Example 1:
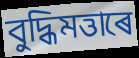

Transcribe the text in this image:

বুদ্ধিমত্তাৰে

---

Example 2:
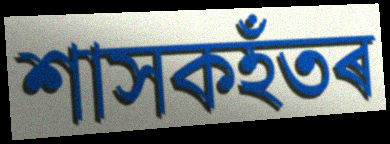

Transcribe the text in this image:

শাসকহঁতৰ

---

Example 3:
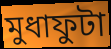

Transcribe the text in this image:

মুধাফুটা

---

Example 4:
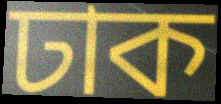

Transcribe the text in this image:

ঢাক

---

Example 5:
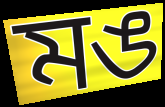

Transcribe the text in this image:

মঙ